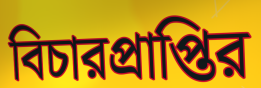
বিচারপ্রাপ্তির